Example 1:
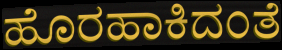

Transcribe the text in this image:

ಹೊರಹಾಕಿದಂತೆ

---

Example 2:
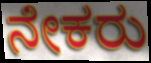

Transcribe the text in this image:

ನೇಕರು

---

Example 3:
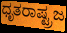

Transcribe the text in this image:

ಧೃತರಾಷ್ಟ್ರಜ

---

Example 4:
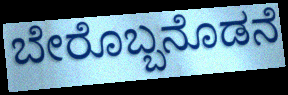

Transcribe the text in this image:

ಬೇರೊಬ್ಬನೊಡನೆ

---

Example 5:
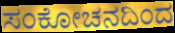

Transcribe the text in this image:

ಸಂಕೋಚನದಿಂದ